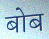
बोब